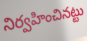
నిర్వహించినట్టు